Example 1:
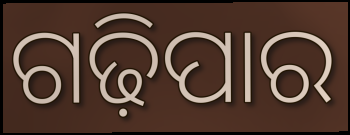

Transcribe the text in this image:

ଗଢ଼ିପାର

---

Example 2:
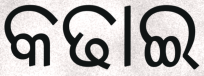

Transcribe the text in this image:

କଢାଇ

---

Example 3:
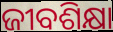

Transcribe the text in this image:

ଜୀବଶିକ୍ଷା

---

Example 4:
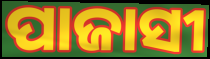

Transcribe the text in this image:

ପାଜାସୀ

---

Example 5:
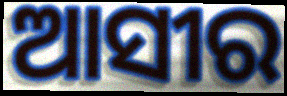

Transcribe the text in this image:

ଆସୀର